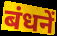
बंधनें